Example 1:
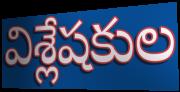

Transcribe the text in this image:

విశ్లేషకుల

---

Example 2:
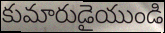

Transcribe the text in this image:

కుమారుడైయుండి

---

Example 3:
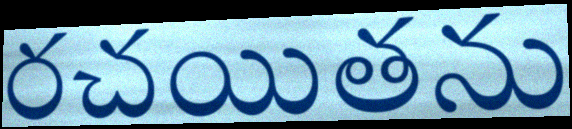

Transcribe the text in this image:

రచయితను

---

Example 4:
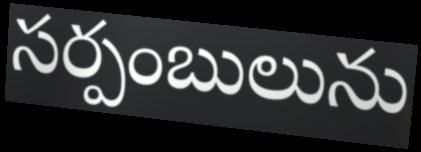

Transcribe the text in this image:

సర్పంబులును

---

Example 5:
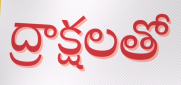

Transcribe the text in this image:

ద్రాక్షలతో